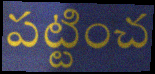
పట్టించ